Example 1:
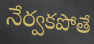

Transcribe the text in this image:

నేర్వకపోతే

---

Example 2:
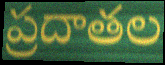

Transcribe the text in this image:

ప్రదాతల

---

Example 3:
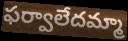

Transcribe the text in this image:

ఫర్వాలేదమ్మా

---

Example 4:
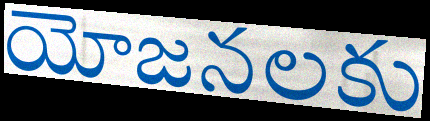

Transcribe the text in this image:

యోజనలకు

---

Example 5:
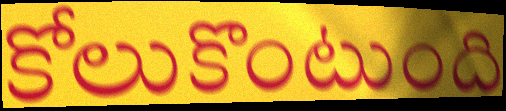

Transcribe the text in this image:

కోలుకొంటుంది